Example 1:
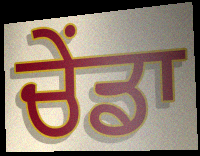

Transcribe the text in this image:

ਚੇਂਡਾ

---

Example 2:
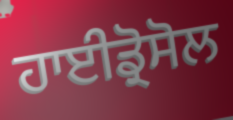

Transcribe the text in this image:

ਹਾਈਡ੍ਰੋਸੋਲ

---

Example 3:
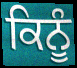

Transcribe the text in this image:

ਕਿਨੂੰ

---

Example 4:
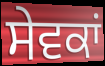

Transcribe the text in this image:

ਸੇਵਕਾਂ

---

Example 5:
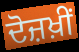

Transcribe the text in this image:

ਦੋਜ਼ਖ਼ੀਂ